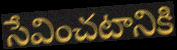
సేవించటానికి